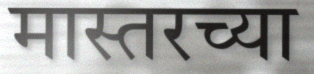
मास्तरच्या